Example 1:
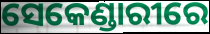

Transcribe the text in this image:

ସେକେଣ୍ଡାରୀରେ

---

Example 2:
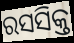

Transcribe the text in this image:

ରସସିକ୍ତ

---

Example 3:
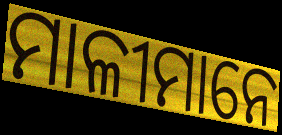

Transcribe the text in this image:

ମାଳୀମାନେ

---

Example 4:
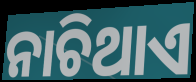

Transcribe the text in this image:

ନାଚିଥାଏ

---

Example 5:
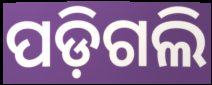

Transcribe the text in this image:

ପଡ଼ିଗଲି